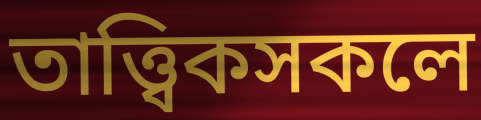
তাত্ত্বিকসকলে